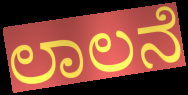
ಲಾಲನೆ